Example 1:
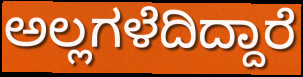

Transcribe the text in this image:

ಅಲ್ಲಗಳೆದಿದ್ದಾರೆ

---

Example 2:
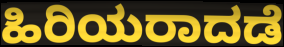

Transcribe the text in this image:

ಹಿರಿಯರಾದಡೆ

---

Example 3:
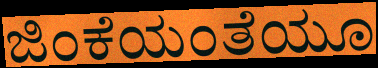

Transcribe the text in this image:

ಜಿಂಕೆಯಂತೆಯೂ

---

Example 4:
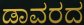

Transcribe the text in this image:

ಡಾವರದ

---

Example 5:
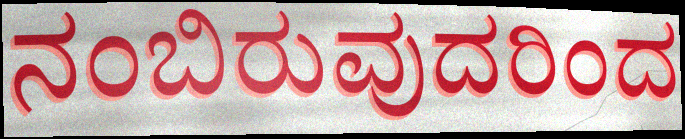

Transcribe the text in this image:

ನಂಬಿರುವುದರಿಂದ